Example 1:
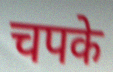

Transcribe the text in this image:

चपके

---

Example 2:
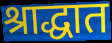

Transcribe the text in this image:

श्राद्धात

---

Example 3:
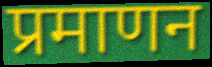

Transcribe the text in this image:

प्रमाणन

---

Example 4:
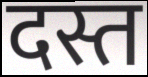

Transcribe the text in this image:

दस्त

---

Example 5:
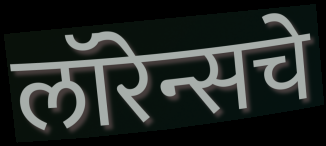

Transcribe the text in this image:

लॉरेन्सचे